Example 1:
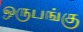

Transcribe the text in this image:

ஒருபங்கு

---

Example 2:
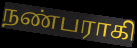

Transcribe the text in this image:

நண்பராகி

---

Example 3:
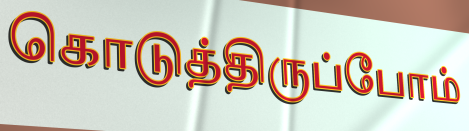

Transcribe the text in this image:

கொடுத்திருப்போம்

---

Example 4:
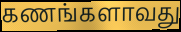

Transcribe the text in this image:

கணங்களாவது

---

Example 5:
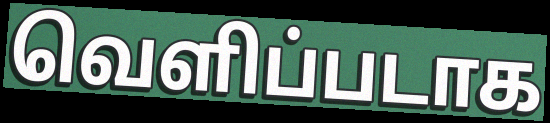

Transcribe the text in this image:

வெளிப்படாக